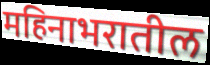
महिनाभरातील